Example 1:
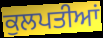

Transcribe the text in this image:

ਕੁਲਪਤੀਆਂ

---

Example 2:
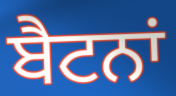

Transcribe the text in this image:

ਬੈਟਨਾਂ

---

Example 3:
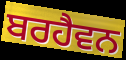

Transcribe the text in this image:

ਬਰਹੈਵਨ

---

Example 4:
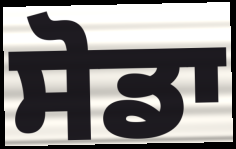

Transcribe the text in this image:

ਸੋਡਾ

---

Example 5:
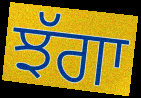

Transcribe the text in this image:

ਝੱਗਾ